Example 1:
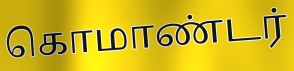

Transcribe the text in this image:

கொமாண்டர்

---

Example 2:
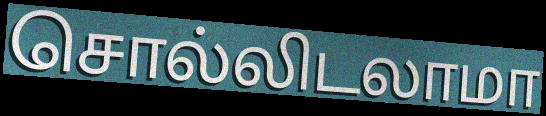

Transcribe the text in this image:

சொல்லிடலாமா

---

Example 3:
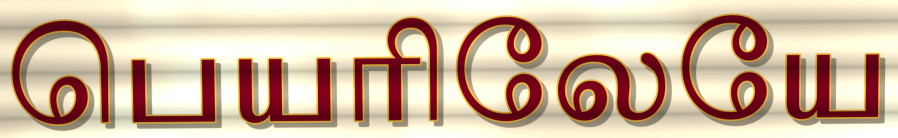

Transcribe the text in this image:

பெயரிலேயே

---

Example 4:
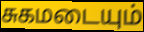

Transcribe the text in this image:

சுகமடையும்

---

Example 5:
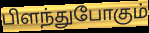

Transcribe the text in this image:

பிளந்துபோகும்